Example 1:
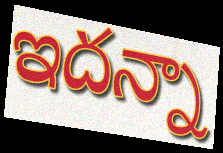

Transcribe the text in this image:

ఇదన్నా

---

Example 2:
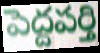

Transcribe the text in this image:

పెద్దపర్తి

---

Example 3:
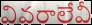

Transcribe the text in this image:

వివరాలేవీ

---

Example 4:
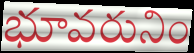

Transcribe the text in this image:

భూవరునిం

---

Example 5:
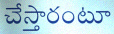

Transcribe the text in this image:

చేస్తారంటూ